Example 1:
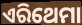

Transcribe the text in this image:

ଏରିଥେମା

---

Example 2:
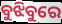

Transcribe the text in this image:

ବୁଝିବୁରେ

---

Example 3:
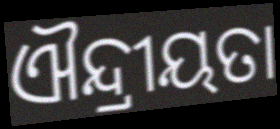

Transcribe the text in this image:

ଐନ୍ଦ୍ରୀୟତା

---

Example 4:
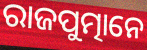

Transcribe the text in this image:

ରାଜପୁତ୍ମାନେ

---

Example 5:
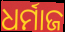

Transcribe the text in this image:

ଧର୍ମାଜ